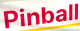
Pinball